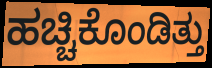
ಹಚ್ಚಿಕೊಂಡಿತ್ತು